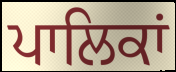
ਪਾਲਿਕਾਂ